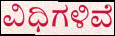
ವಿಧಿಗಳಿವೆ